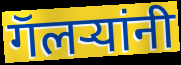
गॅलऱ्यांनी